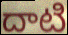
దాటి